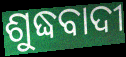
ଶୁଦ୍ଧବାଦୀ